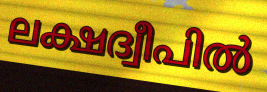
ലക്ഷദ്വീപിൽ